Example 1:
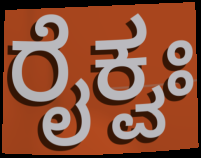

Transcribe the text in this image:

ರೈಕ್ವಃ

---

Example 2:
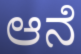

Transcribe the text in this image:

ಆನೆ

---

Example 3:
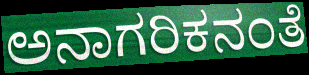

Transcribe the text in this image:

ಅನಾಗರಿಕನಂತೆ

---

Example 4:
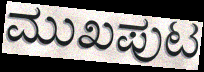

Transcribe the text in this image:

ಮುಖಪುಟ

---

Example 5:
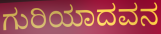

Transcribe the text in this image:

ಗುರಿಯಾದವನ